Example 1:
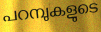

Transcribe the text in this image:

പറമ്പുകളുടെ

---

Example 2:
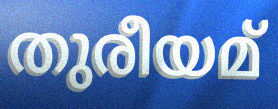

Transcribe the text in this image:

തുരീയമ്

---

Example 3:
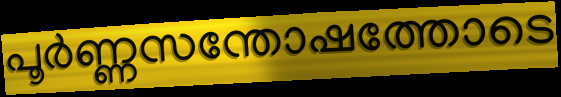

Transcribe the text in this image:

പൂർണ്ണസന്തോഷത്തോടെ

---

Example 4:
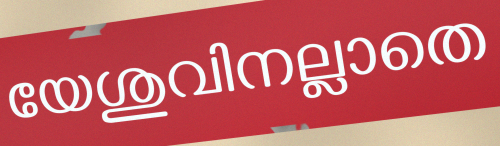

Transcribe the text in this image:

യേശുവിനല്ലാതെ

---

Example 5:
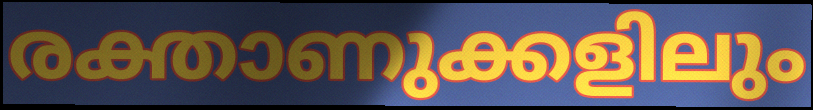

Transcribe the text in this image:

രക്താണുക്കളിലും